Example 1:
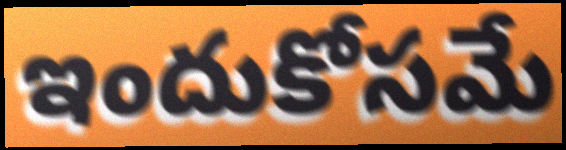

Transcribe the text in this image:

ఇందుకోసమే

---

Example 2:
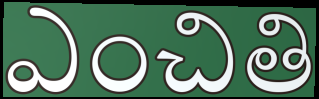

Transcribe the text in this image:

ఎంచితి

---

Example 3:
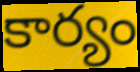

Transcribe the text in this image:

కార్యం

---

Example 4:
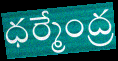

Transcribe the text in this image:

ధర్మేంద్ర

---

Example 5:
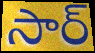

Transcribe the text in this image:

సార్